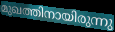
മുഖത്തിനായിരുന്നു